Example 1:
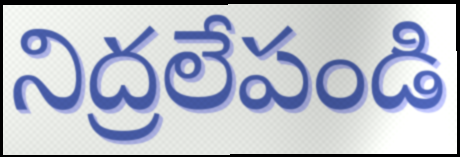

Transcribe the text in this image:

నిద్రలేపండి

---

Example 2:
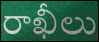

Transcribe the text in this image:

రాఖీలు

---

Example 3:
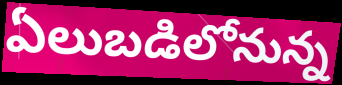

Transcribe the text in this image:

ఏలుబడిలోనున్న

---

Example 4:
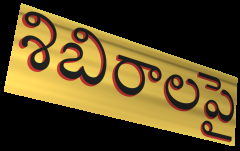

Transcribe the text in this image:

శిబిరాలపై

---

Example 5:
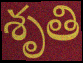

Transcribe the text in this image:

శృతి